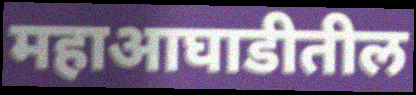
महाआघाडीतील